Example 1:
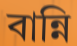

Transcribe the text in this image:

বান্নি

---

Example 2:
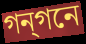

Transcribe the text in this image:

গন্গনে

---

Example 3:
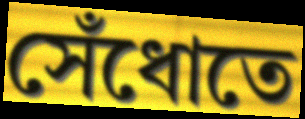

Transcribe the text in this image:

সেঁধোতে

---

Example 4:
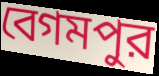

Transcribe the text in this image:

বেগমপুর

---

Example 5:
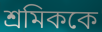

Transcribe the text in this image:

শ্রমিককে